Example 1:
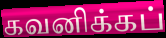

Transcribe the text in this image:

கவனிக்கப்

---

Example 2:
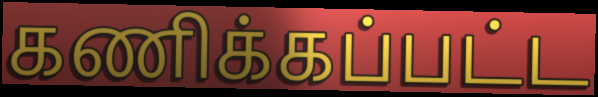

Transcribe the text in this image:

கணிக்கப்பட்ட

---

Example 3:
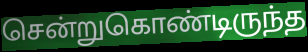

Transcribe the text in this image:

சென்றுகொண்டிருந்த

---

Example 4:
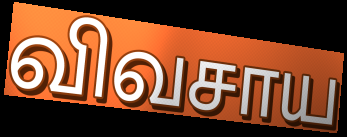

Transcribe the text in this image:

விவசாய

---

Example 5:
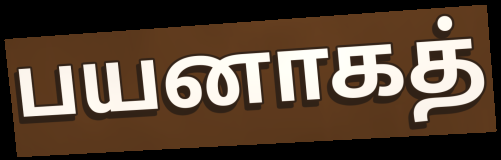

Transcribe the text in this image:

பயனாகத்